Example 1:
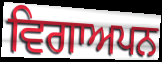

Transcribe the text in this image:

ਵਿਗਾਅਪਨ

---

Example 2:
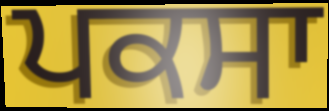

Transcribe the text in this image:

ਪਕਸਾ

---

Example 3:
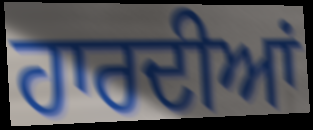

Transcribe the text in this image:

ਹਾਰਦੀਆਂ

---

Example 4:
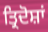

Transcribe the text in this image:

ਤ੍ਰਿਦੋਸ਼ਾਂ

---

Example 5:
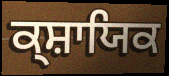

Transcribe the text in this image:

ਕ੍ਸ਼ਾਯਿਕ